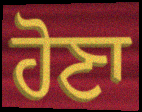
ਹੋਣਾ